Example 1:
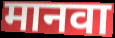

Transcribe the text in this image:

मानवा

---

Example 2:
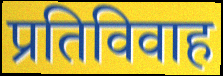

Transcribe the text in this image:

प्रतिविवाह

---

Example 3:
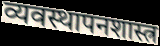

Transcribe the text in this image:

व्यवस्थापनशास्त्र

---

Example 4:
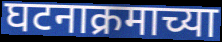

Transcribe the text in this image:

घटनाक्रमाच्या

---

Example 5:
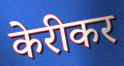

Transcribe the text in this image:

केरीकर